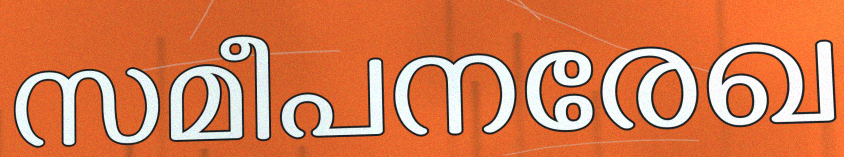
സമീപനരേഖ